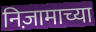
निज़ामाच्या